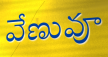
వేణువూ